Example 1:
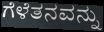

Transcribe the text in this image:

ಗೆಳೆತನವನ್ನು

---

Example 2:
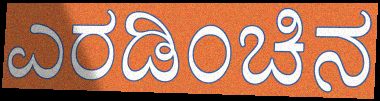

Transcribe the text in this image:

ಎರಡಿಂಚಿನ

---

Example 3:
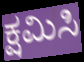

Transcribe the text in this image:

ಕ್ಷಮಿಸಿ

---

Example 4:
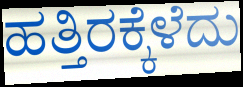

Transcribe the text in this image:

ಹತ್ತಿರಕ್ಕೆಳೆದು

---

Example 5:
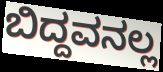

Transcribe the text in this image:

ಬಿದ್ದವನಲ್ಲ